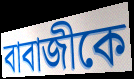
বাবাজীকে